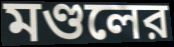
মণ্ডলের